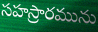
సహస్రారమును